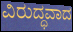
ವಿರುದ್ಧವಾದ